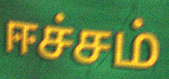
ஈச்சம்